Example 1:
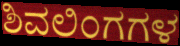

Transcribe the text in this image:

ಶಿವಲಿಂಗಗಳ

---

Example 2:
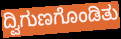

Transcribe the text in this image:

ದ್ವಿಗುಣಗೊಂಡಿತು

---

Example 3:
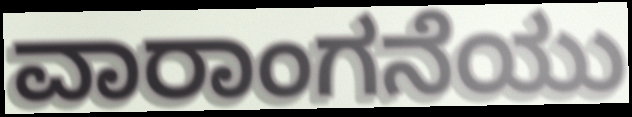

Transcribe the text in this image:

ವಾರಾಂಗನೆಯು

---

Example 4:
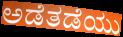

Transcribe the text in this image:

ಅಡೆತಡೆಯು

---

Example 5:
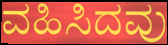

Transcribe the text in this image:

ವಹಿಸಿದವು